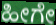
ಹೀಗೇ